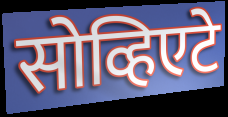
सोव्हिएटे